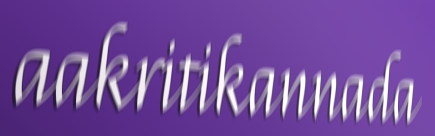
aakritikannada